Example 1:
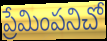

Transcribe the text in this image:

ప్రేమింపనిచో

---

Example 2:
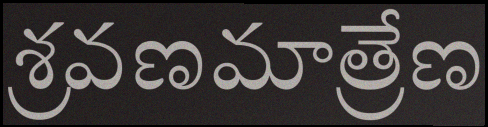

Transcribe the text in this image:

శ్రవణమాత్రేణ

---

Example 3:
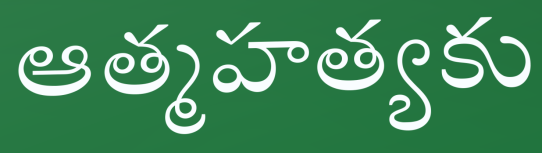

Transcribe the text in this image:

ఆత్మహత్యకు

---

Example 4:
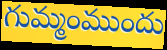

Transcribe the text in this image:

గుమ్మంముందు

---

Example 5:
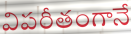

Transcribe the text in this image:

విపరీతంగానే